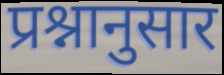
प्रश्नानुसार